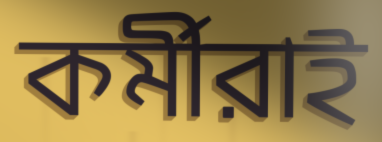
কর্মীরাই